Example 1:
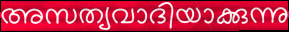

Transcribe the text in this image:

അസത്യവാദിയാക്കുന്നു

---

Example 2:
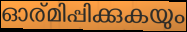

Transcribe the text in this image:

ഓര്മിപ്പിക്കുകയും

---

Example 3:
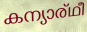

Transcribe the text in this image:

കന്യാര്ഥീ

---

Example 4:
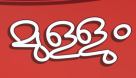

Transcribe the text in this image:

മുള്ളും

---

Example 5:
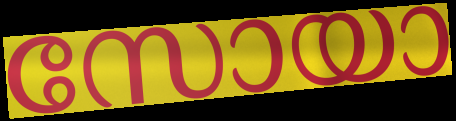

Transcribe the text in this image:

സോയാ